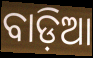
ବାଡ଼ିଆ